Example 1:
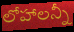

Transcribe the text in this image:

లోహాలన్నీ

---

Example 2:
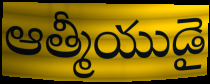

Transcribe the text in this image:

ఆత్మీయుడై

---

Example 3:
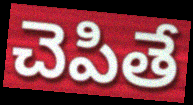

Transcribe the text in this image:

చెపితే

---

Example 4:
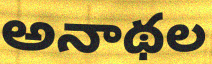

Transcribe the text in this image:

అనాథల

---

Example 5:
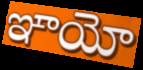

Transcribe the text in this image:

ఞాయో